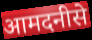
आमदनीसे